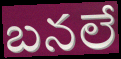
బనలే